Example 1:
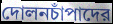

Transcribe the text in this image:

দোলনচাঁপাদের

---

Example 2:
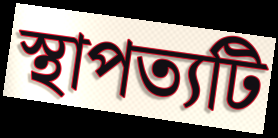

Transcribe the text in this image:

স্থাপত্যটি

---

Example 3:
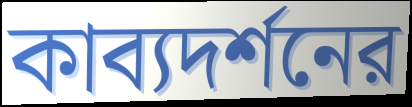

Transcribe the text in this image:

কাব্যদর্শনের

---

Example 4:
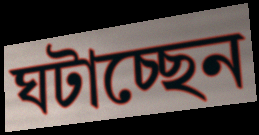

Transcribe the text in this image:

ঘটাচ্ছেন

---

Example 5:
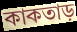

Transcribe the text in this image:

কাকতাড়